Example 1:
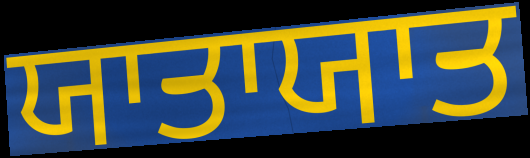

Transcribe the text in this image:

ਯਾਤਾਯਾਤ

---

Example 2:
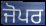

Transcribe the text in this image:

ਜੋਪਰ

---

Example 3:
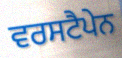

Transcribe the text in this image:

ਵਰਸਟੈਪੇਨ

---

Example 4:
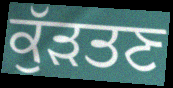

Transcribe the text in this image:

ਕੁੱੜਤਣ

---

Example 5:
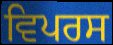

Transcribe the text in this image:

ਵਿਪਰਸ